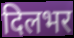
दिलभर